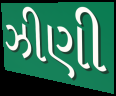
ઝીણી